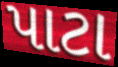
પાટા